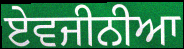
ਏਵਜੀਨੀਆ